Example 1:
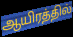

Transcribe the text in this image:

ஆயிரத்தில்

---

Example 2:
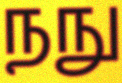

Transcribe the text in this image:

நநு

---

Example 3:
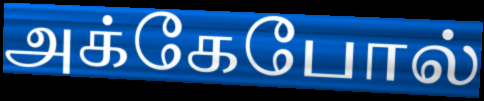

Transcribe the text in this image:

அக்கேபோல்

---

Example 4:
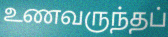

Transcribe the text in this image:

உணவருந்தப்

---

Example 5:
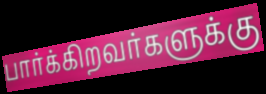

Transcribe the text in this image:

பார்க்கிறவர்களுக்கு